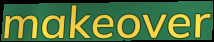
makeover